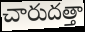
చారుదత్తా